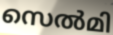
സെൽമി